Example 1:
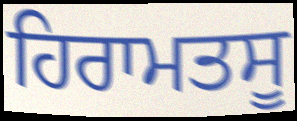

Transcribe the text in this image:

ਹਿਰਾਮਤਸੂ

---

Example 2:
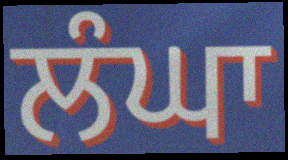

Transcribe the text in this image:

ਲੰਘਾ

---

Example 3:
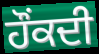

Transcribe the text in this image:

ਹੌਂਕਦੀ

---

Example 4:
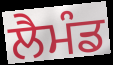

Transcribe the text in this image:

ਲੈਮੰਡ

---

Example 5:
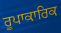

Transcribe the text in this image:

ਰੂਪਾਕਾਰਿਕ